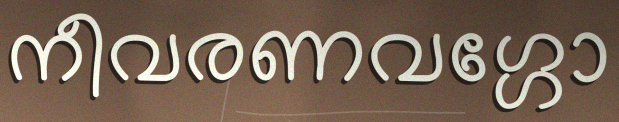
നീവരണവഗ്ഗോ